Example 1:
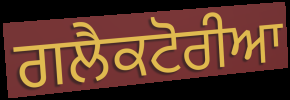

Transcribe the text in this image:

ਗਲੈਕਟੋਰੀਆ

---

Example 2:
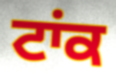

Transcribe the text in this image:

ਟਾਂਕ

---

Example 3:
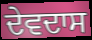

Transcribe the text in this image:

ਦੇਵਦਾਸ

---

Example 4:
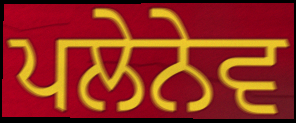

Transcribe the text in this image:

ਪਲੇਨੇਵ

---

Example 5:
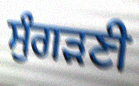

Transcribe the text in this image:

ਸੁੰਗੜਣੀ